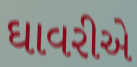
ઘાવરીએ